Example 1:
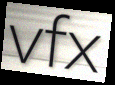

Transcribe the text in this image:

vfx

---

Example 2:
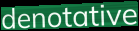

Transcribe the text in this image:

denotative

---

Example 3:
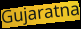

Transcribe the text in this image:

Gujaratna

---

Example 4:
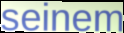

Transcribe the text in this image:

seinem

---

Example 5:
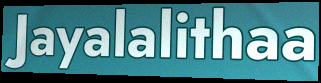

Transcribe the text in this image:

Jayalalithaa